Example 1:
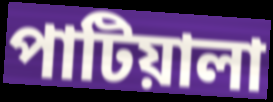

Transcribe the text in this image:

পাটিয়ালা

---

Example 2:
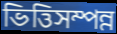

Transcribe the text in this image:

ভিত্তিসম্পন্ন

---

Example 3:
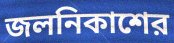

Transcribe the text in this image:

জলনিকাশের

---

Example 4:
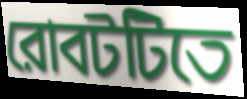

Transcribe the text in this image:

রোবটটিতে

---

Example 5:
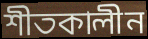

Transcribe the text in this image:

শীতকালীন